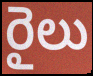
రైలు